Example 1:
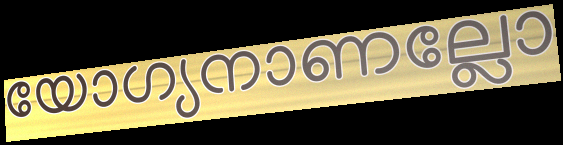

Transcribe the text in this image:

യോഗ്യനാണല്ലോ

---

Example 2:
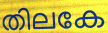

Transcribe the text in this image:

തിലകേ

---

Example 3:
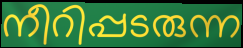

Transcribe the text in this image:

നീറിപ്പടരുന്ന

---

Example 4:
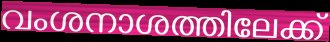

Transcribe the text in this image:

വംശനാശത്തിലേക്ക്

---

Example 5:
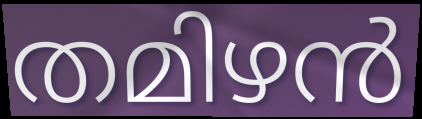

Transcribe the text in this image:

തമിഴൻ